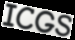
ICGS